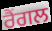
ਰੈਂਗਲ